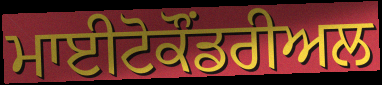
ਮਾਈਟੋਕੌਂਡਰੀਅਲ